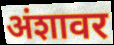
अंशावर